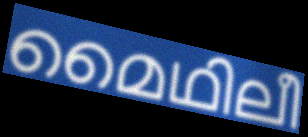
മൈഥിലീ